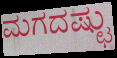
ಮಗದಷ್ಟು